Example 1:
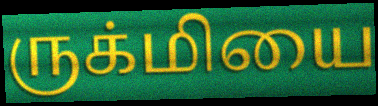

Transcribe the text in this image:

ருக்மியை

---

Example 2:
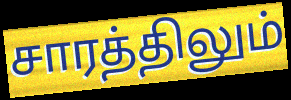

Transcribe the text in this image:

சாரத்திலும்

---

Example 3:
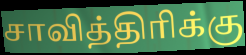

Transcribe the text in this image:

சாவித்திரிக்கு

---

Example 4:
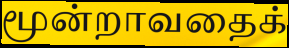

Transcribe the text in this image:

மூன்றாவதைக்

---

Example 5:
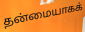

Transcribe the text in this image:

தன்மையாகக்